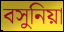
বসুনিয়া